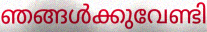
ഞങ്ങൾക്കുവേണ്ടി